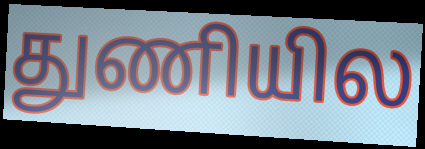
துணியில